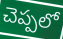
చెప్పలో